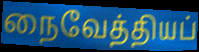
நைவேத்தியப்